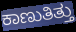
ಕಾಣುತಿತ್ತು